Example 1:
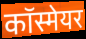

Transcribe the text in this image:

कॉस्मेयर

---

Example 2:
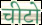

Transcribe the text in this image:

चीटो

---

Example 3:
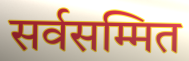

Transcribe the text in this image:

सर्वसम्मित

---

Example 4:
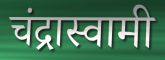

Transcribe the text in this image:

चंद्रास्वामी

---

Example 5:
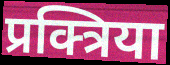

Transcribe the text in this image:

प्रक्त्रिया